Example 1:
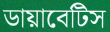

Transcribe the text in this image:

ডায়াবেটিস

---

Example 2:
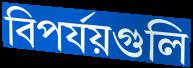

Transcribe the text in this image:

বিপর্যয়গুলি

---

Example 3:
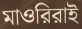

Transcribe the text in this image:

মাওরিরাই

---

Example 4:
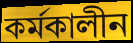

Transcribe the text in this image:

কর্মকালীন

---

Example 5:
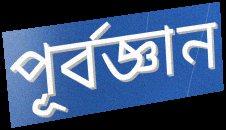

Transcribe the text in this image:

পূর্বজ্ঞান